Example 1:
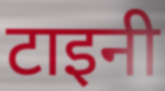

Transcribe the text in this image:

टाइनी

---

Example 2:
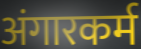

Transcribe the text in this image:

अंगारकर्म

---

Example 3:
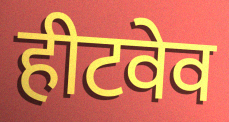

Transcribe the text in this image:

हीटवेव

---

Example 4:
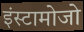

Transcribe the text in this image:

इंस्टामोजो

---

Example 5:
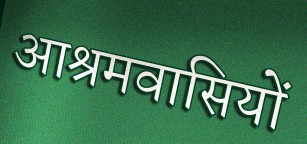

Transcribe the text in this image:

आश्रमवासियों